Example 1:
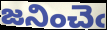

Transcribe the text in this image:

జనించెఁ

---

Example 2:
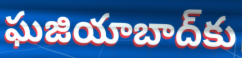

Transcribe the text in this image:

ఘజియాబాద్‌కు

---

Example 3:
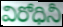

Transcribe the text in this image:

విరోధినీ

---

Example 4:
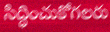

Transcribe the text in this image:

సిద్ధించుకోగలరు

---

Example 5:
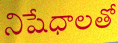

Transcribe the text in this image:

నిషేధాలతో